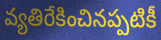
వ్యతిరేకించినప్పటికీ